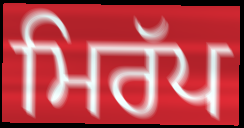
ਮਿਰੱਪ